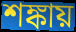
শঙ্কায়